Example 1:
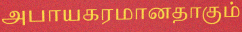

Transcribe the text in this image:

அபாயகரமானதாகும்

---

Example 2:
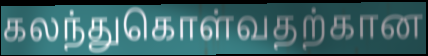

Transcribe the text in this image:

கலந்துகொள்வதற்கான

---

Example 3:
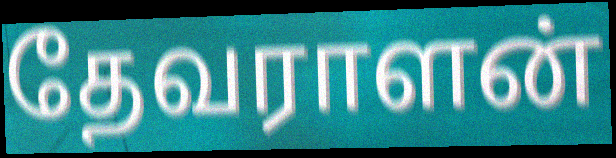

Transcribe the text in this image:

தேவராளன்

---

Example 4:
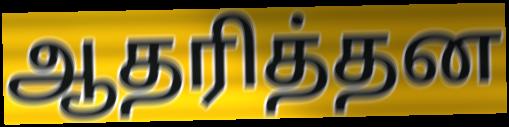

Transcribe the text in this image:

ஆதரித்தன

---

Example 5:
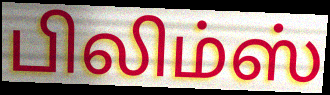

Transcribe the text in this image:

பிலிம்ஸ்